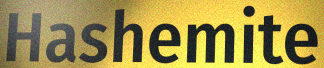
Hashemite